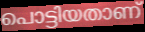
പൊട്ടിയതാണ്